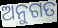
ଅନୁଗତ